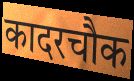
कादरचौक